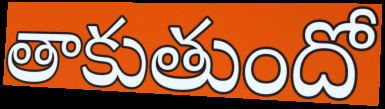
తాకుతుందో